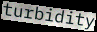
turbidity